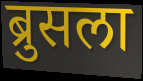
ब्रुसला